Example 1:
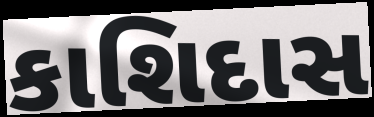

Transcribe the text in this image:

કાશિદાસ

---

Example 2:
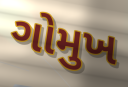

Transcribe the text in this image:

ગોમુખ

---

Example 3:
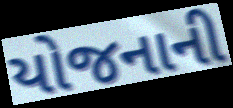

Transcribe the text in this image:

યોજનાની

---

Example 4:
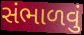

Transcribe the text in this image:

સંભાળવું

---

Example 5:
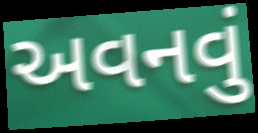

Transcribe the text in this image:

અવનવું